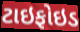
ટાઇફોઇડ